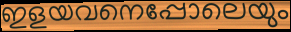
ഇളയവനെപ്പോലെയും